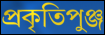
প্রকৃতিপুঞ্জ